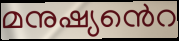
മനുഷ്യൻെറ